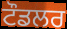
ਟੌਡਲਰ